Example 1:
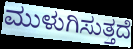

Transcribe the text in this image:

ಮುಳುಗಿಸುತ್ತದೆ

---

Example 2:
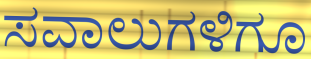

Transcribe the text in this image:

ಸವಾಲುಗಳಿಗೂ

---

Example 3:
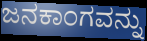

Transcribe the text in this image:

ಜನಕಾಂಗವನ್ನು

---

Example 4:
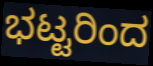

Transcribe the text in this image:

ಭಟ್ಟರಿಂದ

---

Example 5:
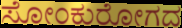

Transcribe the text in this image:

ಸೋಂಕುರೋಗದ